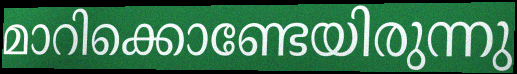
മാറിക്കൊണ്ടേയിരുന്നു